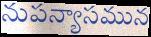
నుపన్యాసమున